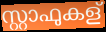
സ്റ്റാഫുകള്